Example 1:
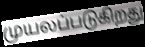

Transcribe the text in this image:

முயலப்படுகிறது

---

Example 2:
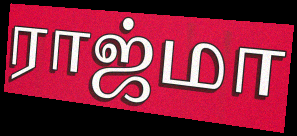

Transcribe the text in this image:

ராஜ்மா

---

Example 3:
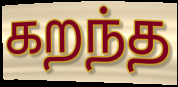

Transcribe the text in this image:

கறந்த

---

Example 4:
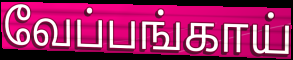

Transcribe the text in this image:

வேப்பங்காய்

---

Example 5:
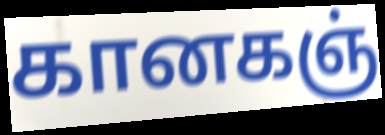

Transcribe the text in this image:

கானகஞ்